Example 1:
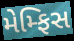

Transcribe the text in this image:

મેમ્ફિસ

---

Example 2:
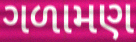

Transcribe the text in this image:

ગળામણ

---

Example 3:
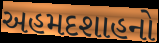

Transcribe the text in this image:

અહમદશાહનો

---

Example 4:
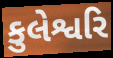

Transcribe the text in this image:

કુલેશ્વરિ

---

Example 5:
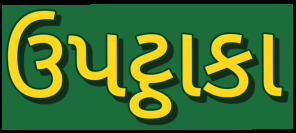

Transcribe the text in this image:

ઉપટ્ઠાકા